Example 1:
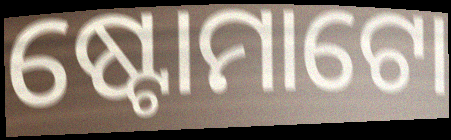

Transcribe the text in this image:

ଷ୍ଟୋମାଟୋ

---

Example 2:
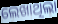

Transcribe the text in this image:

ଲେଖାଥିଲା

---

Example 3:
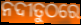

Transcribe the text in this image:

ନଦୀତୁଠରେ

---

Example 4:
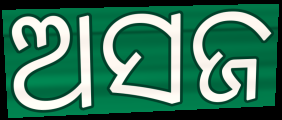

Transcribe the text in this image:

ଅସଜ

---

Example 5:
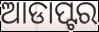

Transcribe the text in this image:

ଆଡାପ୍ଟର